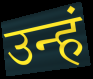
उन्हं